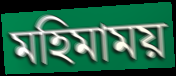
মহিমাময়